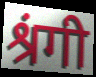
श्रंगी